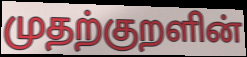
முதற்குறளின்